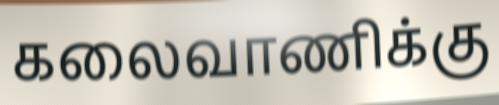
கலைவாணிக்கு